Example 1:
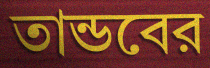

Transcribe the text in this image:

তান্ডবের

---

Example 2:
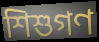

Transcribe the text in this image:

শিশুগণ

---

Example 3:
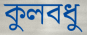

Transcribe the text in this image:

কুলবধু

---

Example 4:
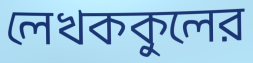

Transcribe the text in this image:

লেখককুলের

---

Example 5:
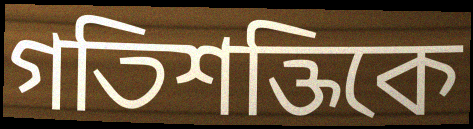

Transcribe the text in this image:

গতিশক্তিকে